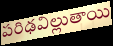
పరిఢవిల్లుతాయి